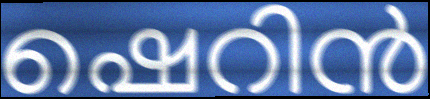
ഷെറിൻ